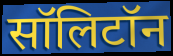
सॉलिटॉन